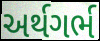
અર્થગર્ભ